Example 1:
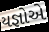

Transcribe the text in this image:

યજ્ઞોએ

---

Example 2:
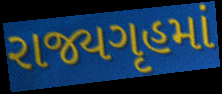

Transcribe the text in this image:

રાજ્યગૃહમાં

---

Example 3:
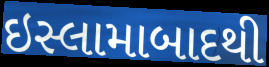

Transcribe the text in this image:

ઇસ્લામાબાદથી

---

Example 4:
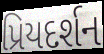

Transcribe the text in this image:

પ્રિયદર્શન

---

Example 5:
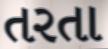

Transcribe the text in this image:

તરતા